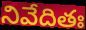
నివేదితః